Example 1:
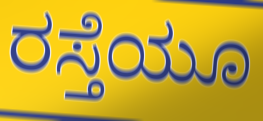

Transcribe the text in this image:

ರಸ್ತೆಯೂ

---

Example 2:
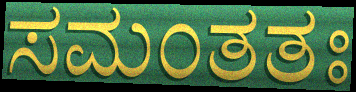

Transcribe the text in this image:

ಸಮಂತತಃ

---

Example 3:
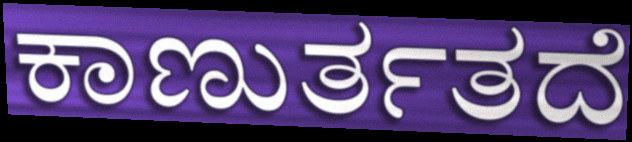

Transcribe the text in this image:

ಕಾಣುರ್ತತದೆ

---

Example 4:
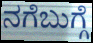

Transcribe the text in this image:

ನಗೆಬುಗ್ಗೆ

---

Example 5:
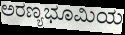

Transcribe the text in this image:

ಅರಣ್ಯಭೂಮಿಯ